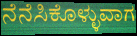
ನೆನೆಸಿಕೊಳ್ಳುವಾಗ